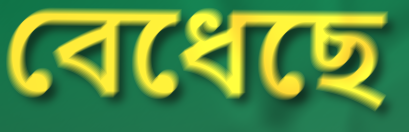
বেধেছে